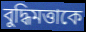
বুদ্ধিমত্তাকে